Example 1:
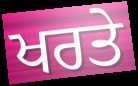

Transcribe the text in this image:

ਖਰਤੇ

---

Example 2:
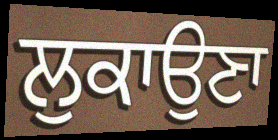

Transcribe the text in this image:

ਲੁਕਾਉਣਾ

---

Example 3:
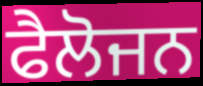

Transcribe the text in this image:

ਫੈਲੋਜਨ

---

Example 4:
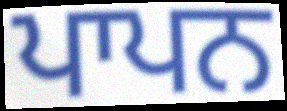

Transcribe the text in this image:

ਪਾਪਨ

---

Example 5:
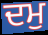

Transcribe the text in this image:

ਦਮੁ